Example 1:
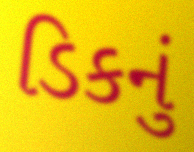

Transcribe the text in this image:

ડિકનું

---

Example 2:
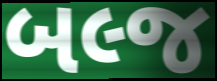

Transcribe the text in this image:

બલ્જ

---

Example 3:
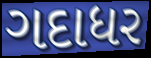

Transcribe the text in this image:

ગદાધર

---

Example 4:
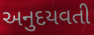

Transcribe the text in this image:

અનુદયવતી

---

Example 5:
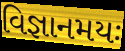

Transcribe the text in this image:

વિજ્ઞાનમયઃ